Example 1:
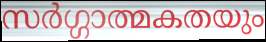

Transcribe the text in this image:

സർഗ്ഗാത്മകതയും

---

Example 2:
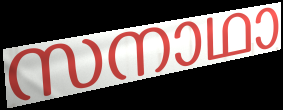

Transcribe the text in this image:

സനാഥാ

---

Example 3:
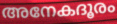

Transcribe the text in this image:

അനേകദൂരം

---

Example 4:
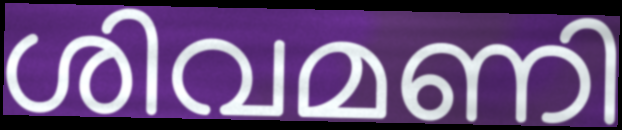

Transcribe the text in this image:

ശിവമണി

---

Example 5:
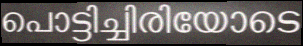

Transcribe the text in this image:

പൊട്ടിച്ചിരിയോടെ